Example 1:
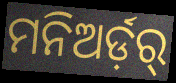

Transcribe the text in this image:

ମନିଅର୍ଡ଼ର୍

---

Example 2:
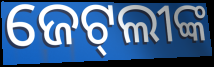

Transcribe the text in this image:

ଜେଟ୍‌ଲୀଙ୍କ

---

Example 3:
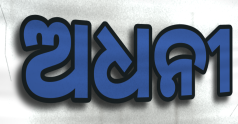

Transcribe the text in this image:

ଅଧନୀ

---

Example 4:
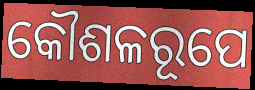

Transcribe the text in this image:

କୌଶଳରୂପେ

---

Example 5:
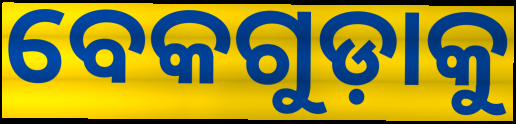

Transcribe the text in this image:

ବେକଗୁଡ଼ାକୁ